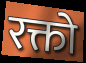
रक्तो